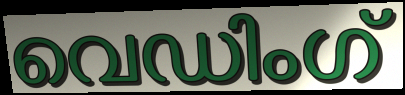
വെഡിംഗ്